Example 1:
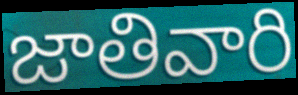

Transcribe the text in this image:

జాతివారి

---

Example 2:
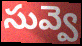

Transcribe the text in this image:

సువ్వె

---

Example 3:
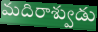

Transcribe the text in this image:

మదిరాశ్వుడు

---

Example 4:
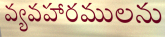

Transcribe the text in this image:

వ్యవహారములను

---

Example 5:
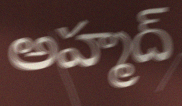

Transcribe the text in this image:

అహ్మద్